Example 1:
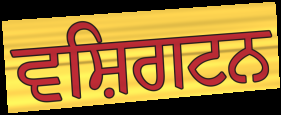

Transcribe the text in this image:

ਵਸ਼ਿਗਟਨ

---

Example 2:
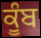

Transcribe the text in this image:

ਕੂੰਬ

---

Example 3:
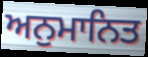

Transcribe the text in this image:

ਅਨੁਮਾਨਿਤ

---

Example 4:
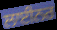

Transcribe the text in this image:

ਲਾਈਨਰ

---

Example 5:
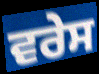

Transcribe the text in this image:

ਵਰੇਸ